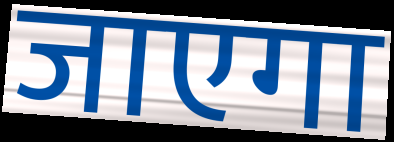
जाएगा